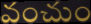
వంచుం